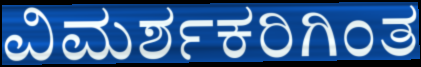
ವಿಮರ್ಶಕರಿಗಿಂತ